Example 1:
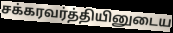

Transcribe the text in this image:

சக்கரவர்த்தியினுடைய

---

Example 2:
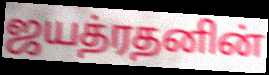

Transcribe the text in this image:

ஜயத்ரதனின்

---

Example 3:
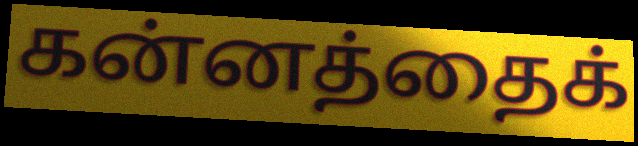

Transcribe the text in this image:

கன்னத்தைக்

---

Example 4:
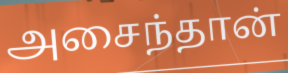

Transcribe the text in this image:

அசைந்தான்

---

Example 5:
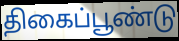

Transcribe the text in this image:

திகைப்பூண்டு